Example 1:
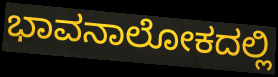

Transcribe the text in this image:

ಭಾವನಾಲೋಕದಲ್ಲಿ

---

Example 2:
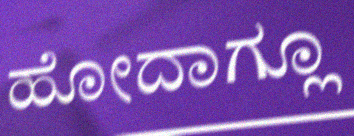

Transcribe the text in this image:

ಹೋದಾಗ್ಲೂ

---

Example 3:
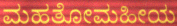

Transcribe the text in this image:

ಮಹತೋಮಹೀಯ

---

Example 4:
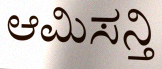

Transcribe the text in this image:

ಆಮಿಸನ್ತಿ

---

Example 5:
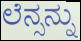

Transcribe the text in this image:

ಲೆನ್ಸನ್ನು